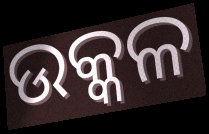
ଉକ୍କଳ